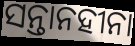
ସନ୍ତାନହୀନା